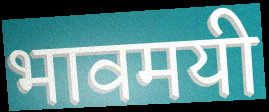
भावमयी